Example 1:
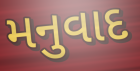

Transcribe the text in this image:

મનુવાદ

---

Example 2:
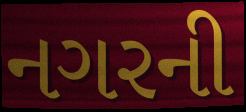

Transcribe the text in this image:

નગરની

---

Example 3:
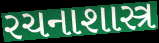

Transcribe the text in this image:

રચનાશાસ્ત્ર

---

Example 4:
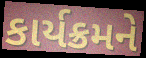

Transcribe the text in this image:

કાર્યક્રમને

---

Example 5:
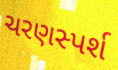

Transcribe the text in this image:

ચરણસ્પર્શ